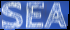
SEA